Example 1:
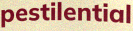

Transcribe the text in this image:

pestilential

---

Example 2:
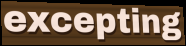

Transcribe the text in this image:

excepting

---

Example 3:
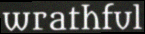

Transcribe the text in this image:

wrathful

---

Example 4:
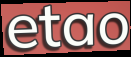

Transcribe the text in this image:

etao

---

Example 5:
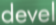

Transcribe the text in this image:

devel